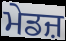
ਮੇਡਜ਼